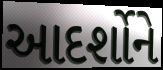
આદર્શોને